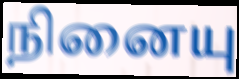
நினையு